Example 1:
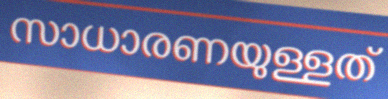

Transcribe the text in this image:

സാധാരണയുള്ളത്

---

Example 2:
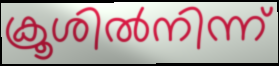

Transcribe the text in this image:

ക്രൂശിൽനിന്ന്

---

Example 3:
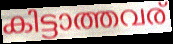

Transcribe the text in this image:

കിട്ടാത്തവര്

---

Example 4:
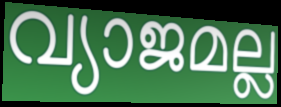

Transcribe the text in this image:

വ്യാജമല്ല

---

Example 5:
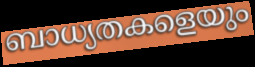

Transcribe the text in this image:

ബാധ്യതകളെയും